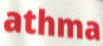
athma